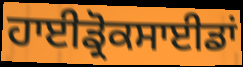
ਹਾਈਡ੍ਰੋਕਸਾਈਡਾਂ